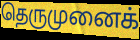
தெருமுனைக்